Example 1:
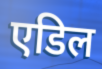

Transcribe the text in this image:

एडिल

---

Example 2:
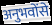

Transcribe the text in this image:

अनुभवोंसे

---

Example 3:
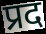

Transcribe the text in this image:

प्रद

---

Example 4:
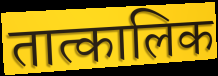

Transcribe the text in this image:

तात्कालिक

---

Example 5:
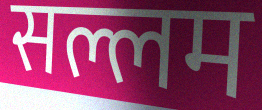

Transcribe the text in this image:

सल्‍लम